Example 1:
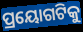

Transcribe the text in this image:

ପ୍ରୟୋଗଟିକୁ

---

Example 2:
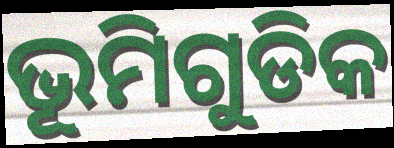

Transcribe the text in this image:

ଭୂମିଗୁଡିକ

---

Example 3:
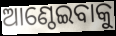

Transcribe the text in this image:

ଆଣ୍ଠେଇବାକୁ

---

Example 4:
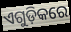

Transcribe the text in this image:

ଏଗୁଡ଼ିକରେ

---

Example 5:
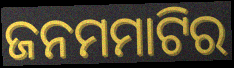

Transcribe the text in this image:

ଜନମମାଟିର